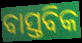
ବାସ୍ତବିକ